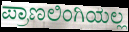
ಪ್ರಾಣಲಿಂಗಿಯಲ್ಲ